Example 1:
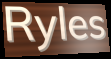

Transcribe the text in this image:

Ryles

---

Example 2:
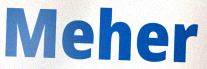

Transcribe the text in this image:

Meher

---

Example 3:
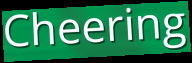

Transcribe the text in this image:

Cheering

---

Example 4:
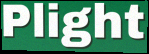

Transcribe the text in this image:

Plight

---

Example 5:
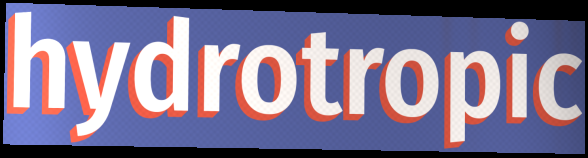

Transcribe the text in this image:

hydrotropic